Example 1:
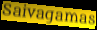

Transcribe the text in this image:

Saivagamas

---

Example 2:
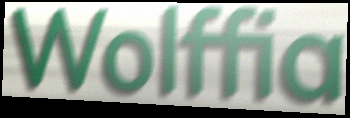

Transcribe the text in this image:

Wolffia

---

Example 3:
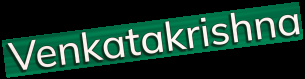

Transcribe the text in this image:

Venkatakrishna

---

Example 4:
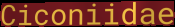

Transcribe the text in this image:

Ciconiidae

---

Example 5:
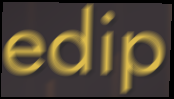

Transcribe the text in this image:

edip